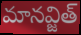
మానవ్జిత్